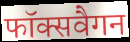
फॉक्सवैगन